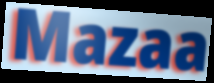
Mazaa